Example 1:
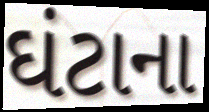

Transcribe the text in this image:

ઘંટાના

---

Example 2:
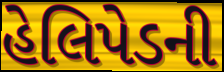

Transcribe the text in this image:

હેલિપેડની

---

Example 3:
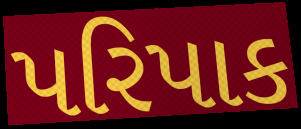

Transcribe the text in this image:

પરિપાક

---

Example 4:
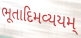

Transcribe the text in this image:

ભૂતાદિમવ્યયમ્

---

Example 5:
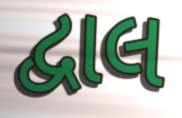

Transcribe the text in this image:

દ્વાલ